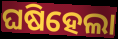
ଘଷିହେଲା